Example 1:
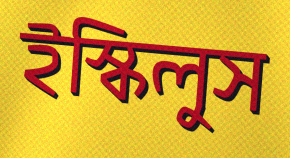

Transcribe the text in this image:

ইস্কিলুস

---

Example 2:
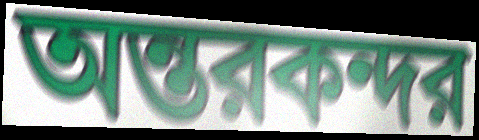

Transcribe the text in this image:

অন্তরকন্দর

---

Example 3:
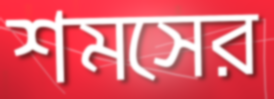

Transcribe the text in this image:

শমসের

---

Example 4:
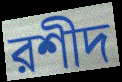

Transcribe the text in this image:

রশীদ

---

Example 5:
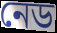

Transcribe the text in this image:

নেড